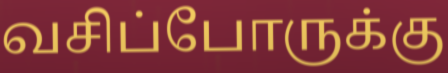
வசிப்போருக்கு